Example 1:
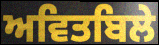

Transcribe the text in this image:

ਅਵਿਤਬਿਲੇ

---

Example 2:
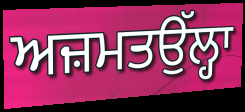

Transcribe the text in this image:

ਅਜ਼ਮਤਉੱਲ੍ਹਾ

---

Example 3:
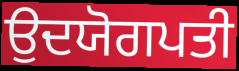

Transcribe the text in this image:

ਉਦਯੋਗਪਤੀ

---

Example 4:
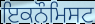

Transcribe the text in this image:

ਇਕਨੌਮਿਸਟ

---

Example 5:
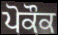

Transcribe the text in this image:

ਪੋਕੌਕ